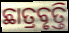
ଛାତ୍ରବୃତ୍ତି